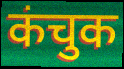
कंचुक